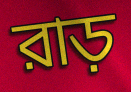
রাড়